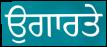
ਉਗਾਰਤੇ